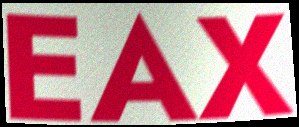
EAX